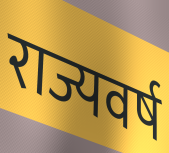
राज्यवर्ष